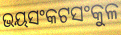
ଭୟସଂକଟସଂକୁଳ